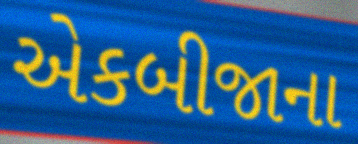
એકબીજાના